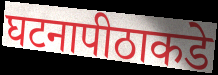
घटनापीठाकडे